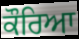
ਕੌਰਿਆ